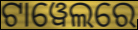
ଟାୱେଲରେ